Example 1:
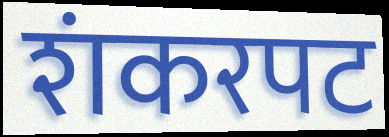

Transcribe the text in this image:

शंकरपट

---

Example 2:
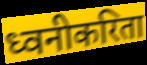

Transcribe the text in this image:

ध्वनीकरिता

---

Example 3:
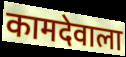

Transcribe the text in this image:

कामदेवाला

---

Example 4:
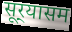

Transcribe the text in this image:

सूर्यासम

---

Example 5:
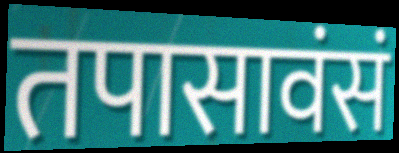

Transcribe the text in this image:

तपासावंसं